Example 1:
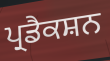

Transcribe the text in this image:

ਪ੍ਰਡੈਕਸ਼ਨ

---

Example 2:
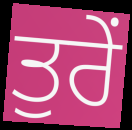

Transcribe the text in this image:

ਤੁਰੇਂ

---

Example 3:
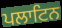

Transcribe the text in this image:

ਪਲਾਟਿਨ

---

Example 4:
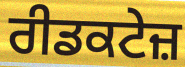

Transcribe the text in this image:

ਰੀਡਕਟੇਜ਼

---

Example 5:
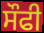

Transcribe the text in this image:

ਸੌਫੀ